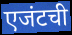
एजंटची